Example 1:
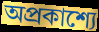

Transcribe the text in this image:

অপ্রকাশ্যে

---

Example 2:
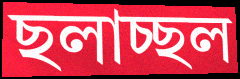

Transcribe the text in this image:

ছলাচ্ছল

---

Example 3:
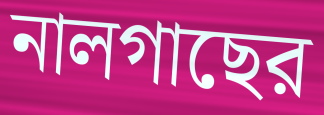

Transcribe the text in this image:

নালগাছের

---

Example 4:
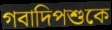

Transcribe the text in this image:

গবাদিপশুকে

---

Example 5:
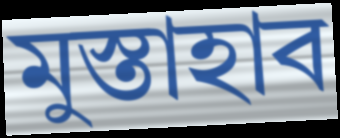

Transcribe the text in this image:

মুস্তাহাব